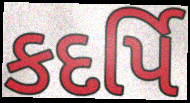
કદર્પિ